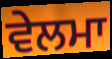
ਵੇਲਮਾ